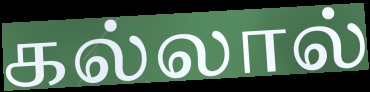
கல்லால்